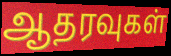
ஆதரவுகள்